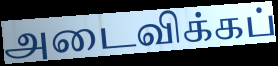
அடைவிக்கப்